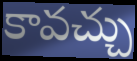
కావచ్చు